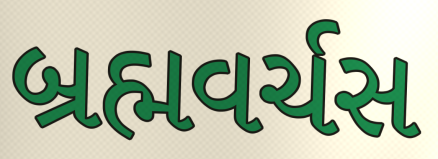
બ્રહ્મવર્ચસ